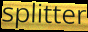
splitter